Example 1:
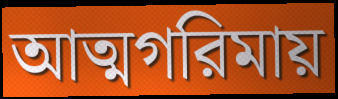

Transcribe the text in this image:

আত্মগরিমায়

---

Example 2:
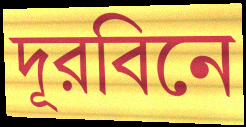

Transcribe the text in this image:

দূরবিনে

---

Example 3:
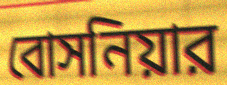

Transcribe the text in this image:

বোসনিয়ার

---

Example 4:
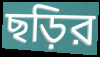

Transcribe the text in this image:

ছড়ির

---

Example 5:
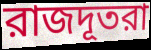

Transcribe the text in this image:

রাজদূতরা